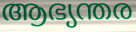
ആഭ്യന്തര